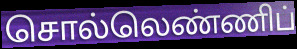
சொல்லெண்ணிப்